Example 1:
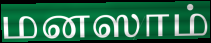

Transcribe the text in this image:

மனஸாம்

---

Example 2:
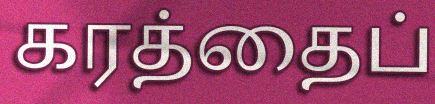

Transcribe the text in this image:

கரத்தைப்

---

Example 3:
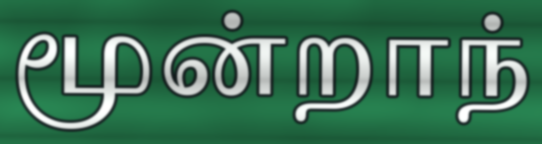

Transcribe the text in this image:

மூன்றாந்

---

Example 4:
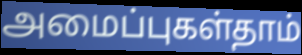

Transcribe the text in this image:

அமைப்புகள்தாம்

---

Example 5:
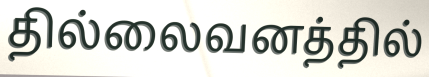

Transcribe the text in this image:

தில்லைவனத்தில்